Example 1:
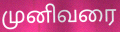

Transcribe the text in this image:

முனிவரை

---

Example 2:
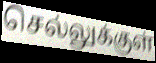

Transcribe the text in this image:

செல்லுக்குள்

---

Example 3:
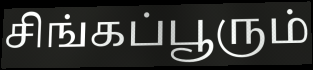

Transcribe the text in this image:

சிங்கப்பூரும்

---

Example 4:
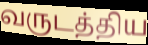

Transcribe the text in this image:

வருடத்திய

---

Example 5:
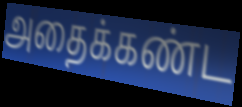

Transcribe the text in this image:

அதைக்கண்ட